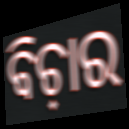
ବିଚ଼ାର